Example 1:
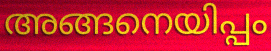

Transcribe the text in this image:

അങ്ങനെയിപ്പം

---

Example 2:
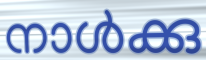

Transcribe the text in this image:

നാൾക്കു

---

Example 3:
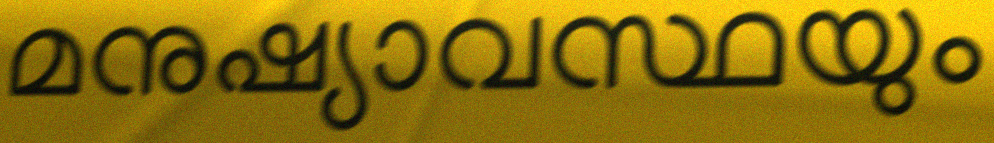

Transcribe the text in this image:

മനുഷ്യാവസ്ഥയും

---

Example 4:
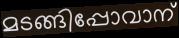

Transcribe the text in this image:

മടങ്ങിപ്പോവാന്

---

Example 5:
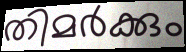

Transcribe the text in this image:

തിമർക്കും